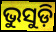
ଭୁସୁଡ଼ି